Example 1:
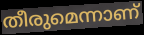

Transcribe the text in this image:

തീരുമെന്നാണ്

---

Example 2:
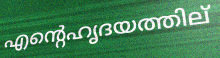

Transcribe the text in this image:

എന്റെഹൃദയത്തില്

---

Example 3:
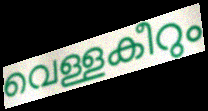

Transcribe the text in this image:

വെള്ളകീറും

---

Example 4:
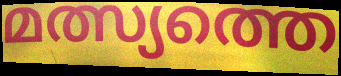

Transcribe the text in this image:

മത്സ്യത്തെ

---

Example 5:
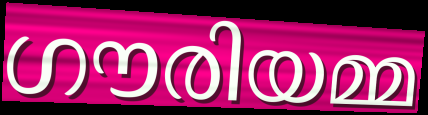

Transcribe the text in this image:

ഗൗരിയമ്മ